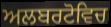
ਅਲਬਰਟੋਵਿਚ